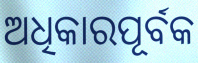
ଅଧିକାରପୂର୍ବକ